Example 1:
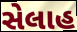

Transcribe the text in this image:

સેલાહ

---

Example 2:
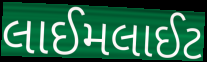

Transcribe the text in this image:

લાઈમલાઈટ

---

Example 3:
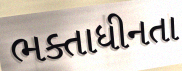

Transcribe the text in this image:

ભક્તાધીનતા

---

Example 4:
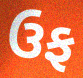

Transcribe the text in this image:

ઉફ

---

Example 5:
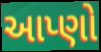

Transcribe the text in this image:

આપ્ણો